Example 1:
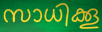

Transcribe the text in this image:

സാധിക്കൂ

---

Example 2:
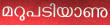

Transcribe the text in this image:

മറുപടിയാണു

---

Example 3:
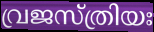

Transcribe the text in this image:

വ്രജസ്ത്രിയഃ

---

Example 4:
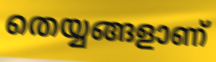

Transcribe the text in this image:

തെയ്യങ്ങളാണ്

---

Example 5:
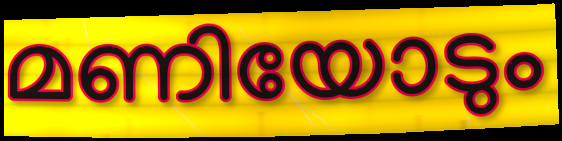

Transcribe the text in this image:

മണിയോടും